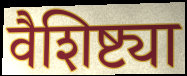
वैशिष्ट्या